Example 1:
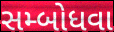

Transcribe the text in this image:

સમ્બોધવા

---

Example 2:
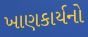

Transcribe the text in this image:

ખાણકાર્યનો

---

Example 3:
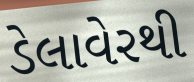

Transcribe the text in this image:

ડેલાવેરથી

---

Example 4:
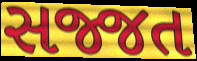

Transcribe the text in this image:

સજ્જત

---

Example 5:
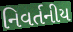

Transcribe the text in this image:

નિવર્તનીય